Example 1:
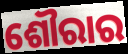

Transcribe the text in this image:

ଶୌରାର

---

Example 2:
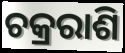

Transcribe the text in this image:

ଚକ୍ରରାଶି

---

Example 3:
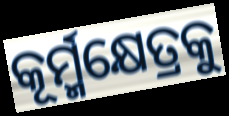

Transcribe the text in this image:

କୂର୍ମ୍ମକ୍ଷେତ୍ରକୁ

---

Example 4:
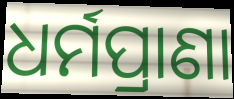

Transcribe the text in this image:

ଧର୍ମପ୍ରାଣା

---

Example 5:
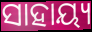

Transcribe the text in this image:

ସାହାୟ୍ୟ